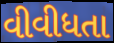
વીવીધતા